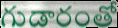
గుడారంతో